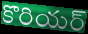
కొరియర్